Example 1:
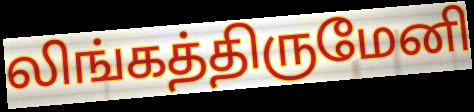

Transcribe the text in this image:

லிங்கத்திருமேனி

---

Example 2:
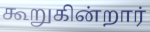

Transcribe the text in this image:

கூறுகின்றார்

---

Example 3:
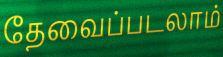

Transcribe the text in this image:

தேவைப்படலாம்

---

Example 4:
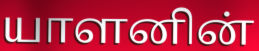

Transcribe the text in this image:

யாளனின்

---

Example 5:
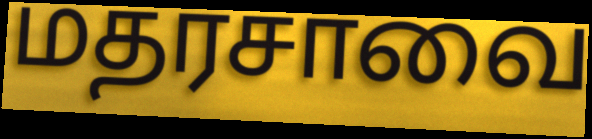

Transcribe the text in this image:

மதரசாவை